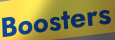
Boosters